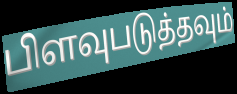
பிளவுபடுத்தவும்